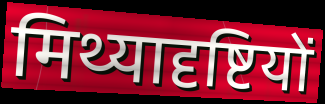
मिथ्यादृष्टियों